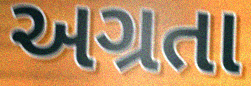
અગ્રતા